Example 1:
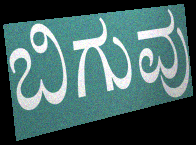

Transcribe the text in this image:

ಬಿಗುವು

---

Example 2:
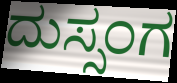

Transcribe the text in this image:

ದುಸ್ಸಂಗ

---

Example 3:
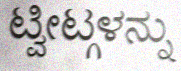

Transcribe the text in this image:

ಟ್ವೀಟ್ಗಳನ್ನು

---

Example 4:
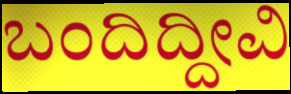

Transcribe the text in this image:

ಬಂದಿದ್ದೀವಿ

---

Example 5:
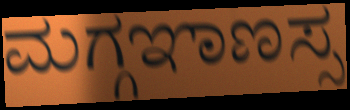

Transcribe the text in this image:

ಮಗ್ಗಞಾಣಸ್ಸ